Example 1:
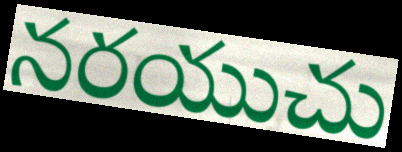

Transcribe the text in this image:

నరయుచు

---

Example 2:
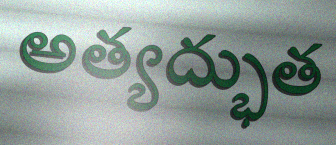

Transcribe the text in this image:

అత్యద్భుత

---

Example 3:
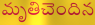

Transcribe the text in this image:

మృతిచెందిన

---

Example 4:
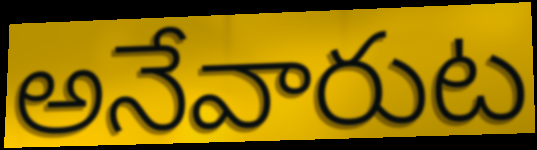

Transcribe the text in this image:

అనేవారుట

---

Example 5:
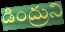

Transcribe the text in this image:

డింద్రుని